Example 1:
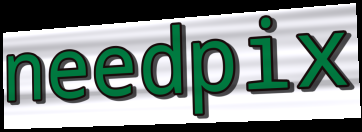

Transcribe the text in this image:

needpix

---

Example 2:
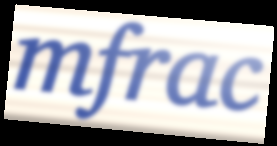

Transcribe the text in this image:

mfrac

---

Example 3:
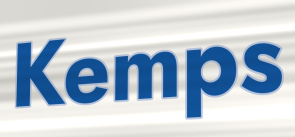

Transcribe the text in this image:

Kemps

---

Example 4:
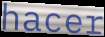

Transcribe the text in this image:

hacer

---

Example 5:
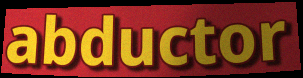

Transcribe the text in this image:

abductor